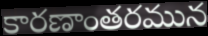
కారణాంతరమున